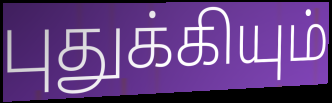
புதுக்கியும்